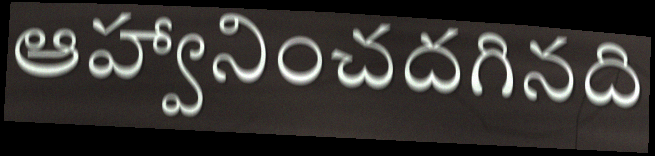
ఆహ్వానించదగినది